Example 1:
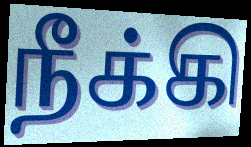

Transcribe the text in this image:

நீக்கி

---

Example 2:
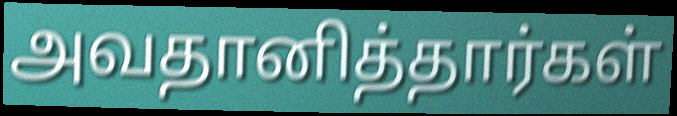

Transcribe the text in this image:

அவதானித்தார்கள்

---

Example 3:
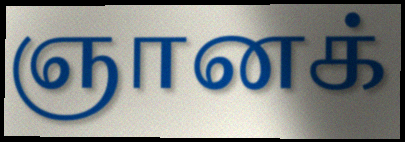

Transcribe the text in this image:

ஞானக்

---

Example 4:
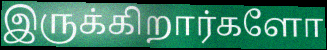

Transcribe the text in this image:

இருக்கிறார்களோ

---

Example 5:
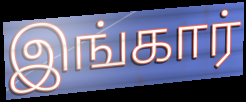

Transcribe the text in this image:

இங்கார்